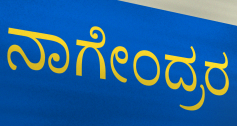
ನಾಗೇಂದ್ರರ